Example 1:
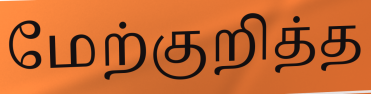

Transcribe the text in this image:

மேற்குறித்த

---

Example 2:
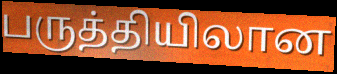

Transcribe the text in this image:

பருத்தியிலான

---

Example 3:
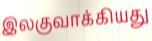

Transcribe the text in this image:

இலகுவாக்கியது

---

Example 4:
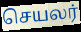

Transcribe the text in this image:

செயலர்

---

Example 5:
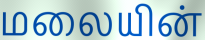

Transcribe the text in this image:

மலையின்